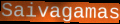
Saivagamas